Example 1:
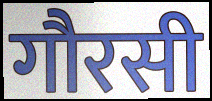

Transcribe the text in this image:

गौरसी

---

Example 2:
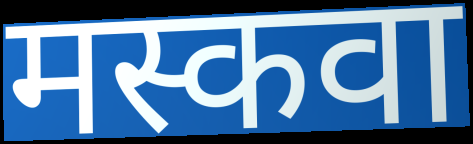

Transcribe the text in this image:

मस्कवा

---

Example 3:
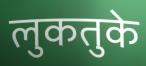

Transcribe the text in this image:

लुकतुके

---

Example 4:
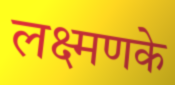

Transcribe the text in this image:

लक्ष्मणके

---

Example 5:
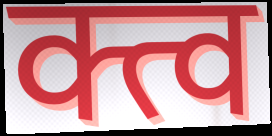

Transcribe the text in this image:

क्त्व